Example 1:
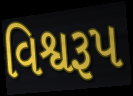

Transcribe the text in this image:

વિશ્વરૂપ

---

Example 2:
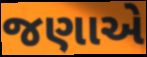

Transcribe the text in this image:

જણાએ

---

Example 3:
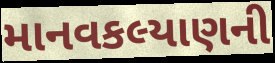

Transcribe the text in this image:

માનવકલ્યાણની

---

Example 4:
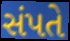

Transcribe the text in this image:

સંપતે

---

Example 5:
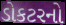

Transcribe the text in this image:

ડોકટરનો